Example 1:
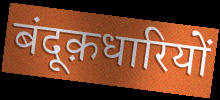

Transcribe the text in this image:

बंदूक़धारियों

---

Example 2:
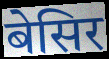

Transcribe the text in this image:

बेसिर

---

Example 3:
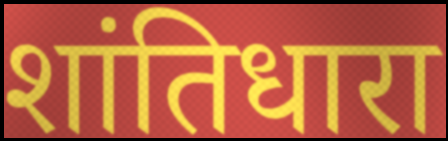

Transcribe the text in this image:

शांतिधारा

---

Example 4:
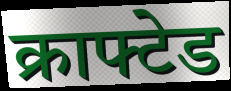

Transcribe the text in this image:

क्राफ्टेड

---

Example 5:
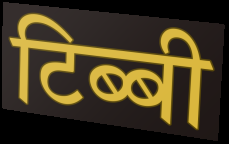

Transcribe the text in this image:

टिब्बी